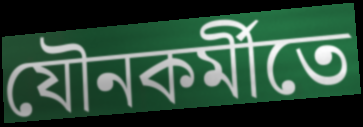
যৌনকর্মীতে